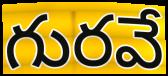
గురవే